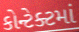
કોન્ટેક્ટમાં